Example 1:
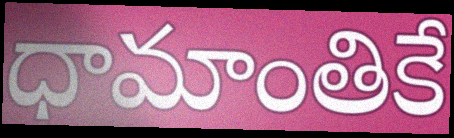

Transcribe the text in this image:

ధామాంతికే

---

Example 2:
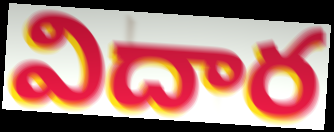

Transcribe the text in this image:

విదార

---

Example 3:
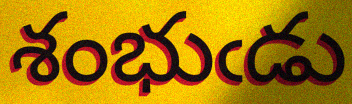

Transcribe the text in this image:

శంభుఁడు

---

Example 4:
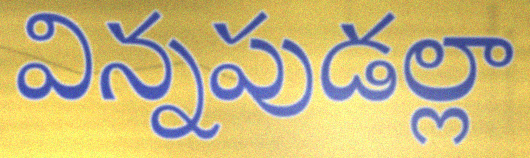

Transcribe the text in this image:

విన్నపుడల్లా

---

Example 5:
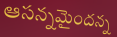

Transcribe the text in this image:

ఆసన్నమైందన్న